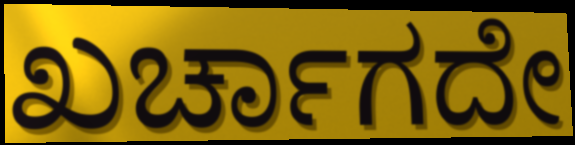
ಖರ್ಚಾಗದೇ